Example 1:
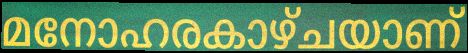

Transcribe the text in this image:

മനോഹരകാഴ്ചയാണ്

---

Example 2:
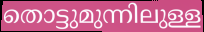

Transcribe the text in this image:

തൊട്ടുമുന്നിലുള്ള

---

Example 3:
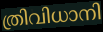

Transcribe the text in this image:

ത്രിവിധാനി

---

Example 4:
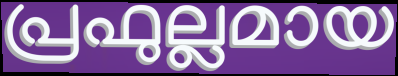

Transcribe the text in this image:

പ്രഫുല്ലമായ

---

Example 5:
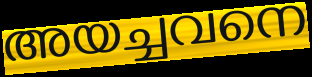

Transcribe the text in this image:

അയച്ചവനെ